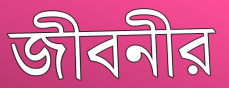
জীবনীর